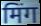
मिंग